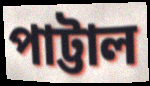
পাট্টাল